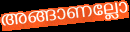
അങ്ങാണല്ലോ